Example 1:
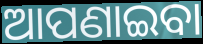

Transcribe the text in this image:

ଆପଣାଇବା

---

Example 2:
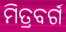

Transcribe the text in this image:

ମିତ୍ରବର୍ଗ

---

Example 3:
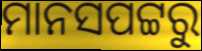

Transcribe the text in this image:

ମାନସପଟ୍ଟରୁ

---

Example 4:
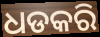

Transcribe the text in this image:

ଧଡକରି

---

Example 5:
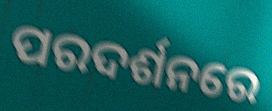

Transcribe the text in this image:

ପରଦର୍ଶନରେ